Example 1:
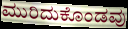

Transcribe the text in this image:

ಮುರಿದುಕೊಂಡವು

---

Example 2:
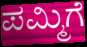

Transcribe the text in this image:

ಪಮ್ಮಿಗೆ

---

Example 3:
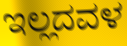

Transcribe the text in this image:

ಇಲ್ಲದವಳ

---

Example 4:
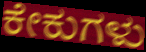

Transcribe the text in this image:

ಕೇಕುಗಳು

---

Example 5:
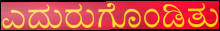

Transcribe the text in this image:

ಎದುರುಗೊಂಡಿತು